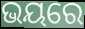
ଭୟରେ